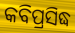
କବିପ୍ରସିଦ୍ଧ